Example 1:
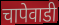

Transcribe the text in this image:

चापेवाडी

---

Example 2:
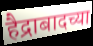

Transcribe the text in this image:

हैद्राबादच्या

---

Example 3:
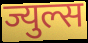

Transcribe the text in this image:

ज्युल्स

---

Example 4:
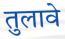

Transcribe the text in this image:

तुलावे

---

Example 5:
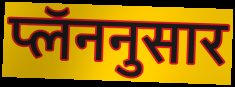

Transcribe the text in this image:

प्लॅननुसार